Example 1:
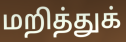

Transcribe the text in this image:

மறித்துக்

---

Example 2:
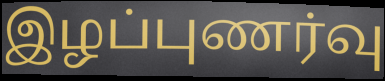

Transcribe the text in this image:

இழப்புணர்வு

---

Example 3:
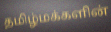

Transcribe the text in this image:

தமிழ்மக்களின்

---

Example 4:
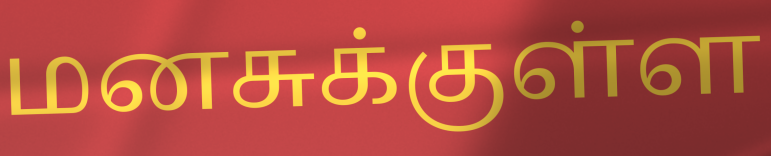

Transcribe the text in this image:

மனசுக்குள்ள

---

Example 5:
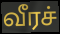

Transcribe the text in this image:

வீரச்